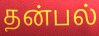
தன்பல்